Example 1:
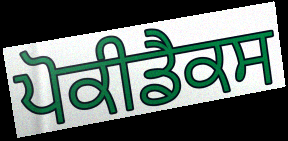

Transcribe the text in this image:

ਪੋਕੀਡੈਕਸ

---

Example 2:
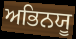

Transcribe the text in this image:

ਅਭਿਨਯੂ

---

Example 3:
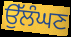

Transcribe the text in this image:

ਉੱਲੰਘਣ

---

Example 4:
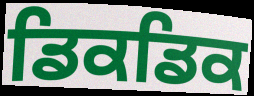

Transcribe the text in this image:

ਡਿਕਡਿਕ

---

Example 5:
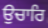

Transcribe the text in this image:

ਉਚਾਰਿ